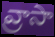
వ్రాసా